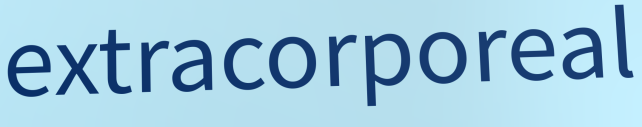
extracorporeal